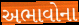
અભાવોના